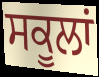
ਸਕੂਲਾਂ